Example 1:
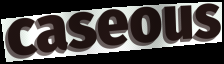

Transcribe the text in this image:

caseous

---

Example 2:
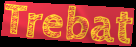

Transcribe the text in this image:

Trebat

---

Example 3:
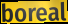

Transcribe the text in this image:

boreal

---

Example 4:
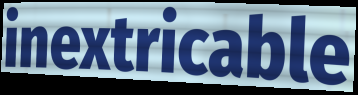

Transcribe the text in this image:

inextricable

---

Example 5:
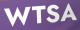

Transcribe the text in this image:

WTSA